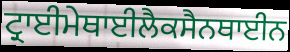
ਟ੍ਰਾਈਮੇਥਾਈਲੈਕਸੈਨਥਾਈਨ